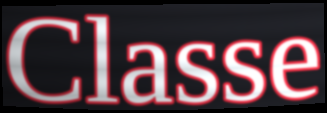
Classe